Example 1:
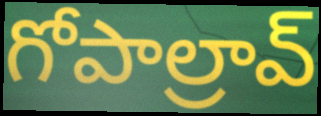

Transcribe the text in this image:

గోపాల్రావ్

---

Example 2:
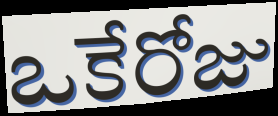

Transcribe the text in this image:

ఒకేరోజు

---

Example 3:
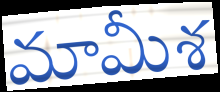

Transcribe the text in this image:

మామీశ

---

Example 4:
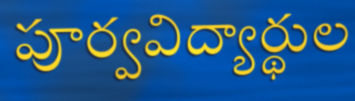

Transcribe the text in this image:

పూర్వవిద్యార్థుల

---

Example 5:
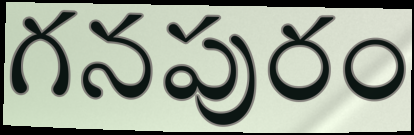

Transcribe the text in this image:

గనపురం